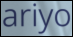
ariyo